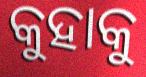
କୁହାକୁ